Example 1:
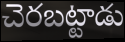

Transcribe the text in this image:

చెరబట్టాడు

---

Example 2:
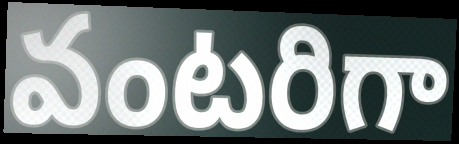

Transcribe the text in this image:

వంటరిగా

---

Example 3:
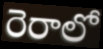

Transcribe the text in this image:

రెరాలో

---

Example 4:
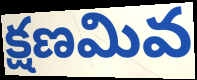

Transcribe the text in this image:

క్షణమివ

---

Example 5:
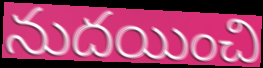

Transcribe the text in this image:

నుదయించి